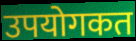
उपयोगकत